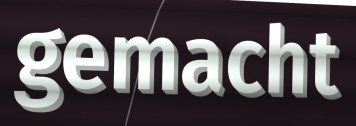
gemacht